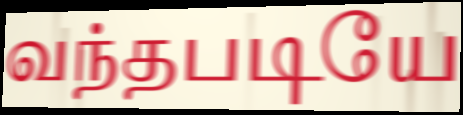
வந்தபடியே